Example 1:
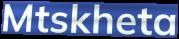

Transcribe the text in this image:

Mtskheta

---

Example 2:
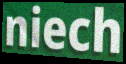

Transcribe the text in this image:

niech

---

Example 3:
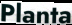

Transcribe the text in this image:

Planta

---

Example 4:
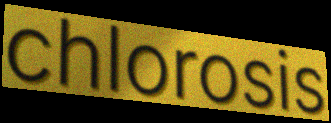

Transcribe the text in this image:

chlorosis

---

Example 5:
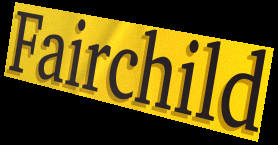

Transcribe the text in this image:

Fairchild